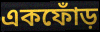
একফোঁড়